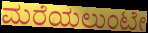
ಮರೆಯಲುಂಟೇ